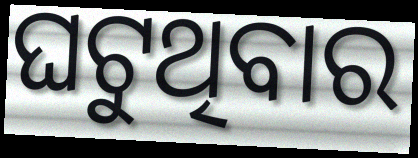
ଘଟୁଥିବାର